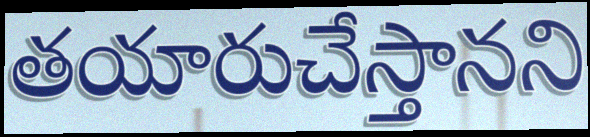
తయారుచేస్తానని